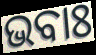
ଭବାଃ